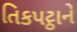
તિકપટ્ઠાને